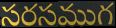
సరసముగ